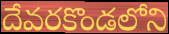
దేవరకొండలోని